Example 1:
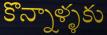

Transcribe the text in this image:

కొన్నాళ్ళకు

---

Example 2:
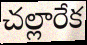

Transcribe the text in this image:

చల్లారేక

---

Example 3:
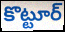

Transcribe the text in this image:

కొట్టూర్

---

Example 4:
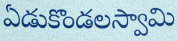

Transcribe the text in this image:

ఏడుకొండలస్వామి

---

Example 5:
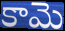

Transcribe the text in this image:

కామె